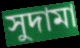
সুদামা